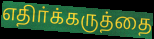
எதிர்க்கருத்தை